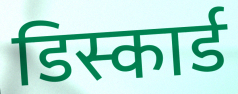
डिस्कार्ड